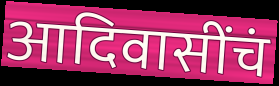
आदिवासींचं